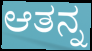
ಆತನ್ನ